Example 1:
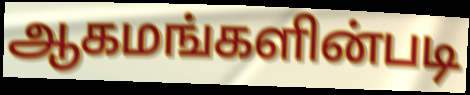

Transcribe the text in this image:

ஆகமங்களின்படி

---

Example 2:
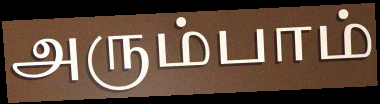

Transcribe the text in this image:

அரும்பாம்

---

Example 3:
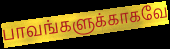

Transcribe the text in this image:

பாவங்களுக்காகவே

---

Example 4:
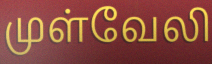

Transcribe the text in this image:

முள்வேலி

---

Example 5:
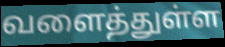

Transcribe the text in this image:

வளைத்துள்ள